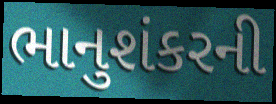
ભાનુશંકરની